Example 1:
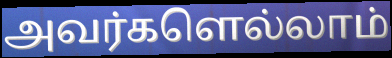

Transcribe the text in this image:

அவர்களெல்லாம்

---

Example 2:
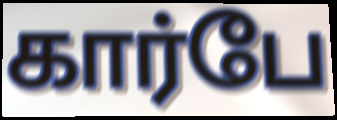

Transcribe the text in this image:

கார்பே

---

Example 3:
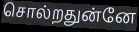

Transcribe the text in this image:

சொல்றதுன்னே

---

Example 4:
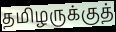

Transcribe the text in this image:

தமிழருக்குத்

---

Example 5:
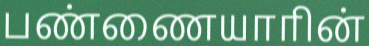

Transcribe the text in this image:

பண்ணையாரின்